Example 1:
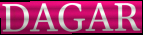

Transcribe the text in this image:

DAGAR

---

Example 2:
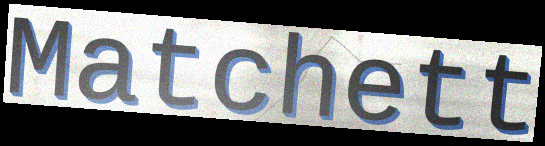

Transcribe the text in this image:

Matchett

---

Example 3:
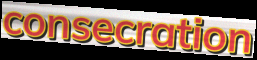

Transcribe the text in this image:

consecration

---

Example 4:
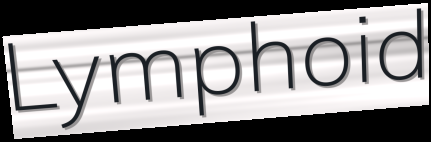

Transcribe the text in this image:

Lymphoid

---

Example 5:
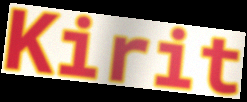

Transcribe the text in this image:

Kirit